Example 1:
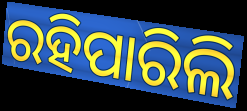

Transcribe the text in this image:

ରହିପାରିଲି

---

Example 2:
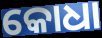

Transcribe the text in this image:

କୋଧା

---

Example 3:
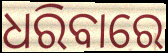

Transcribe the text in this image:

ଧରିବାରେ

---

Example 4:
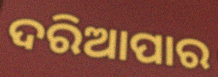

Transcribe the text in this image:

ଦରିଆପାର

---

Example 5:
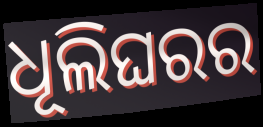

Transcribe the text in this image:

ଧୂଲିଘରର